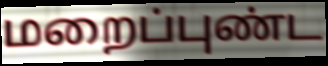
மறைப்புண்ட